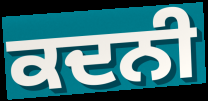
ਕਦਨੀ